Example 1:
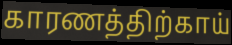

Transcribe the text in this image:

காரணத்திற்காய்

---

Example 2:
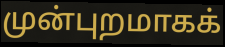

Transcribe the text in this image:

முன்புறமாகக்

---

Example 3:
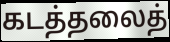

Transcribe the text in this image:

கடத்தலைத்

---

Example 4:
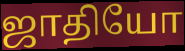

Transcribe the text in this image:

ஜாதியோ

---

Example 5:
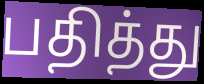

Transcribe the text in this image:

பதித்து